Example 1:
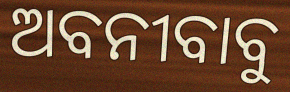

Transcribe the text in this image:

ଅବନୀବାବୁ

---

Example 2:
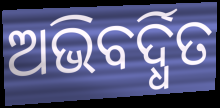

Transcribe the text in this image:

ଅଭିବର୍ଦ୍ଧିତ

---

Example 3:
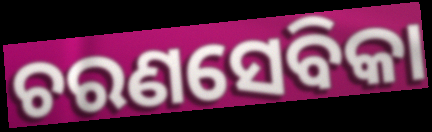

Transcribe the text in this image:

ଚରଣସେବିକା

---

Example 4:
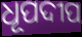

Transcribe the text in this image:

ଧୂପଦୀପ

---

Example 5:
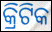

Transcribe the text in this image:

କ୍ରିଟିକ